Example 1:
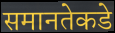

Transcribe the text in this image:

समानतेकडे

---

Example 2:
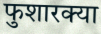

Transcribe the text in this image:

फुशारक्‍या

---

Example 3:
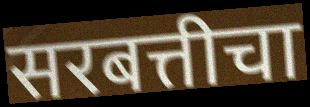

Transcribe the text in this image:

सरबत्तीचा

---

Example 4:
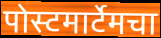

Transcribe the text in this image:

पोस्टमार्टेमचा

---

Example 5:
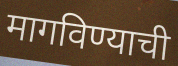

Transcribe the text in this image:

मागविण्याची